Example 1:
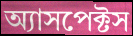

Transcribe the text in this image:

অ্যাসপেক্টস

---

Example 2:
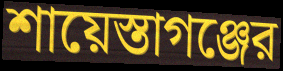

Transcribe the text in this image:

শায়েস্তাগঞ্জের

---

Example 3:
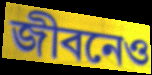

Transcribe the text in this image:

জীবনেও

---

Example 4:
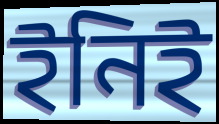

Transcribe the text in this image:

ইনিই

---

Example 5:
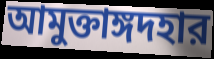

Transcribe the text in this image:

আমুক্তাঙ্গদহার